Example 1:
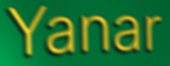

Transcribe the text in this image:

Yanar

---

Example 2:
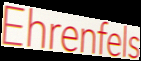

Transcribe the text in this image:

Ehrenfels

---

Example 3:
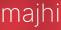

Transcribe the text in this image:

majhi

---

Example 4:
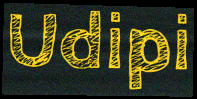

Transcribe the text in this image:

Udipi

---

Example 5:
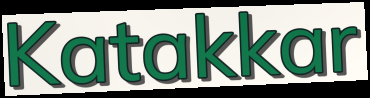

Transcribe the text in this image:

Katakkar